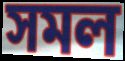
সমল